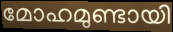
മോഹമുണ്ടായി